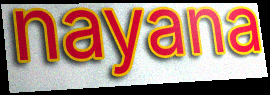
nayana